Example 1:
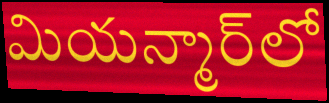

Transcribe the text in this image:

మియన్మార్‌లో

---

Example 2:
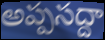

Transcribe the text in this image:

అప్పసద్దా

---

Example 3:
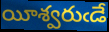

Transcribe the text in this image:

యీశ్వరుఁడే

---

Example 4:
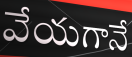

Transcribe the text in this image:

వేయగానే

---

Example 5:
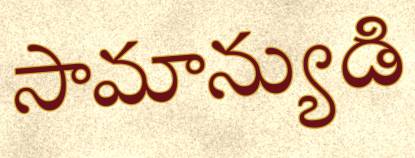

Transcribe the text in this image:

సామాన్యుడి